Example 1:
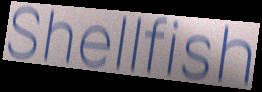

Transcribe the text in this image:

Shellfish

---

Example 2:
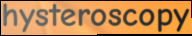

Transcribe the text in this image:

hysteroscopy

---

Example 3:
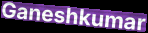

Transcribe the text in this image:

Ganeshkumar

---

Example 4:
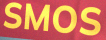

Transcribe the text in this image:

SMOS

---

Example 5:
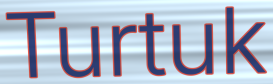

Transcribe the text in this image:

Turtuk